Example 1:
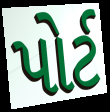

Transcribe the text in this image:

પોર્ટ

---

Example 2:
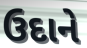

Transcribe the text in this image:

ઉદાને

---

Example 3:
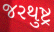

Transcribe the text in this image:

જરથુષ્ટ્ર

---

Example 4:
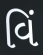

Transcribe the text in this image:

વિં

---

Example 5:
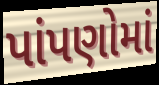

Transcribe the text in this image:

પાંપણોમાં